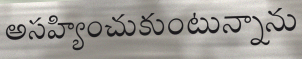
అసహ్యించుకుంటున్నాను